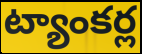
ట్యాంకర్ల